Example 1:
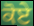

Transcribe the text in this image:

ਕੋਏ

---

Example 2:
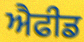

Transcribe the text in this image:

ਐਫੀਡ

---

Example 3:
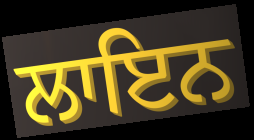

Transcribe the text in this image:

ਲਾਇਨ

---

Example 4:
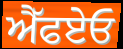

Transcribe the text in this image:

ਐੱਫਏਓ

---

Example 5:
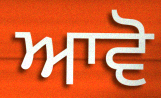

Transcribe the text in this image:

ਆਵੋ